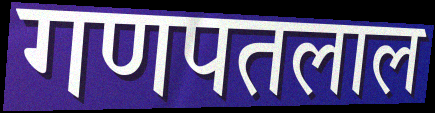
गणपतलाल